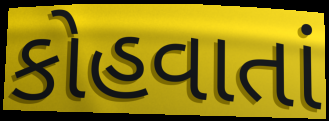
કોહવાતાં